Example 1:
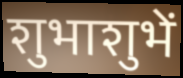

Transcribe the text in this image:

शुभाशुभें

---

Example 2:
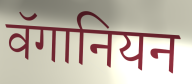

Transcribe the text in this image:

वॅगानियन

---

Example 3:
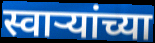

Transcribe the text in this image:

स्वाऱ्यांच्या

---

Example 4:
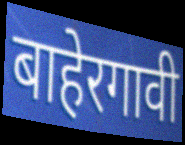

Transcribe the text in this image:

बाहेरगावी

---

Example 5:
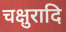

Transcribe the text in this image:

चक्षुरादि